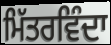
ਮਿੱਤਰਵਿੰਦਾ